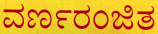
ವರ್ಣರಂಜಿತ